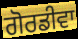
ਗੋਰਡੀਵਾ